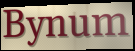
Bynum